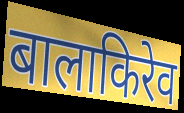
बालाकिरेव